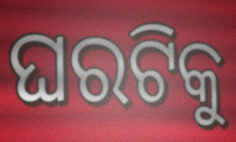
ଘରଟିକୁ